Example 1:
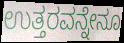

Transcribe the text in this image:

ಉತ್ತರವನ್ನೇನೂ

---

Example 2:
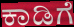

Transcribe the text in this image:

ಕಾಡಿಗೆ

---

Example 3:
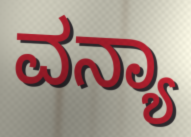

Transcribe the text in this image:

ವನ್ಯಾ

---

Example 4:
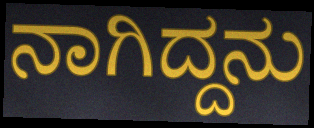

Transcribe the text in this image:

ನಾಗಿದ್ದನು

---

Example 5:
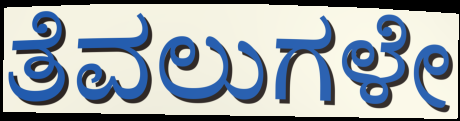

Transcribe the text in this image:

ತೆವಲುಗಳೇ